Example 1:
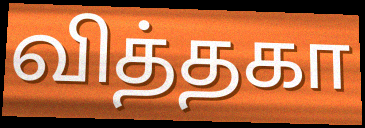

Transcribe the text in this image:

வித்தகா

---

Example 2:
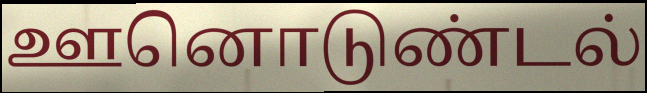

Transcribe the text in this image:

ஊனொடுண்டல்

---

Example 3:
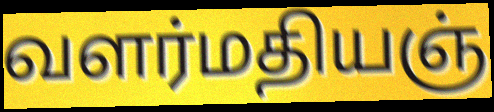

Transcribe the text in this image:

வளர்மதியஞ்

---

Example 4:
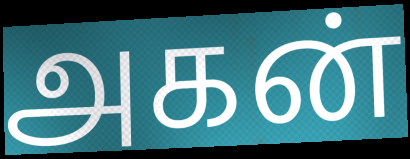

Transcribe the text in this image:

அகன்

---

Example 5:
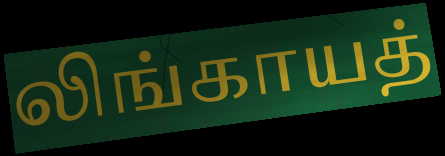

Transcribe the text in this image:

லிங்காயத்